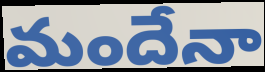
మందేనా